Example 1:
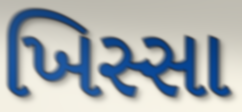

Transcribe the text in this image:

ખિસ્સા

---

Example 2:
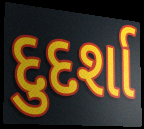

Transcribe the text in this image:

દુદર્શા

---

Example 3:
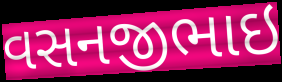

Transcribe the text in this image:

વસનજીભાઇ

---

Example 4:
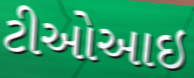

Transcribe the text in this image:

ટીઓઆઇ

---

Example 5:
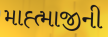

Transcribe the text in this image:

માહ્ત્માજીની